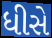
ધીસે